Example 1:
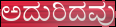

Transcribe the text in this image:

ಅದುರಿದವು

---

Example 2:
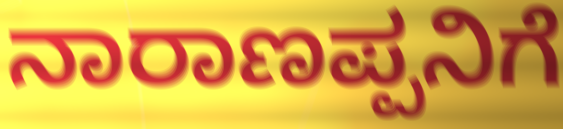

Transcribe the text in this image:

ನಾರಾಣಪ್ಪನಿಗೆ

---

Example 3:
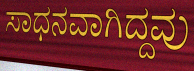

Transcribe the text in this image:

ಸಾಧನವಾಗಿದ್ದವು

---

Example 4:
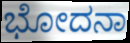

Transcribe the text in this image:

ಭೋದನಾ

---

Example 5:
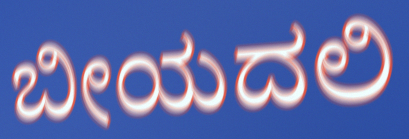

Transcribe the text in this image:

ಬೀಯದಲಿ